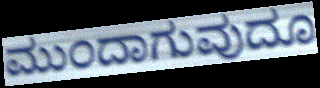
ಮುಂದಾಗುವುದೂ